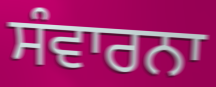
ਸੰਵਾਰਨਾ